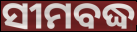
ସୀମବଦ୍ଧ